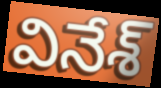
వినేశ్